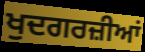
ਖੁਦਗਰਜ਼ੀਆਂ